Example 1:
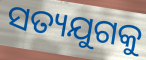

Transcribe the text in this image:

ସତ୍ୟଯୁଗକୁ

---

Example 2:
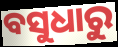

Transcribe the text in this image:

ବସୁଧାରୁ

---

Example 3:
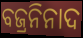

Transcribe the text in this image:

ବଜ୍ରନିନାଦ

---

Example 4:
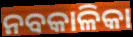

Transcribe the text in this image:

ନବକାଳିକା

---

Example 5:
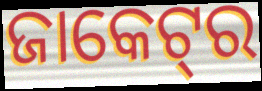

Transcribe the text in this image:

ଜାକେଟ୍‌ର